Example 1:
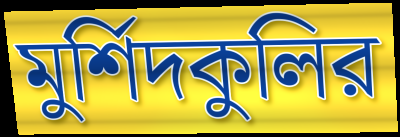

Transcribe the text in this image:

মুর্শিদকুলির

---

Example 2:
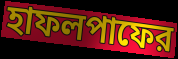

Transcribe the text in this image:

হাফলপাফের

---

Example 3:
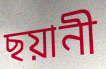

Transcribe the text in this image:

ছয়ানী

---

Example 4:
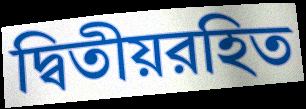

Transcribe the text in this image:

দ্বিতীয়রহিত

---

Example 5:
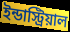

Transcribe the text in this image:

ইন্ডাস্ট্রিয়াল